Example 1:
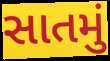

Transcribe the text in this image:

સાતમું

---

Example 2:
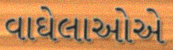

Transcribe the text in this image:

વાઘેલાઓએ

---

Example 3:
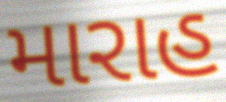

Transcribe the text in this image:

મારાહ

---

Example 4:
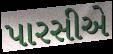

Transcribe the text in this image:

પારસીએ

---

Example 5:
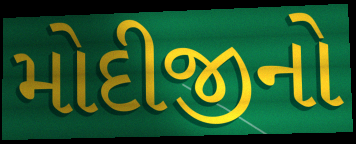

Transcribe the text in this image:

મોદીજીનો